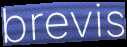
brevis